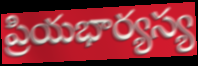
ప్రియభార్యస్య